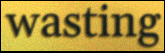
wasting